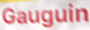
Gauguin